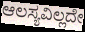
ಆಲಸ್ಯವಿಲ್ಲದೇ